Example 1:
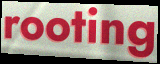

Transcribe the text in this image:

rooting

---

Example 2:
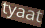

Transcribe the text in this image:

tyaat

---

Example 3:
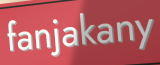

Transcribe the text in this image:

fanjakany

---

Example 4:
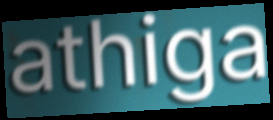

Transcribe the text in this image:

athiga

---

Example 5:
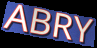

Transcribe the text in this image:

ABRY